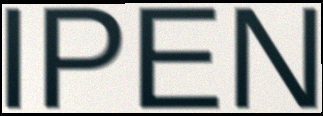
IPEN